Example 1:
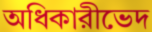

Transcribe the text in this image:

অধিকারীভেদ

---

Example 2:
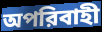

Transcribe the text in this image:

অপরিবাহী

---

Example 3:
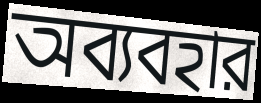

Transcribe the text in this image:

অব্যবহার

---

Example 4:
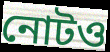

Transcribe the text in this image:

নোটও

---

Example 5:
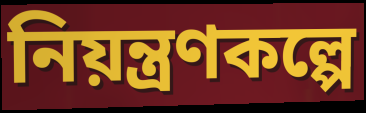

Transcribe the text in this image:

নিয়ন্ত্রণকল্পে